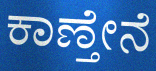
ಕಾಣ್ತೇನೆ